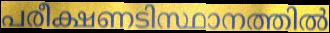
പരീക്ഷണടിസ്ഥാനത്തിൽ